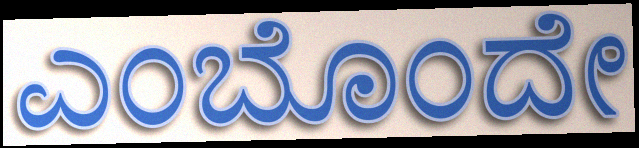
ಎಂಬೊಂದೇ